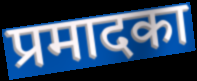
प्रमादका